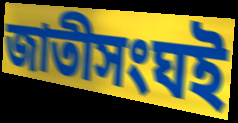
জাতীসংঘই